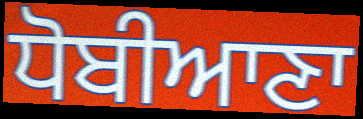
ਧੋਬੀਆਣਾ